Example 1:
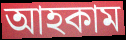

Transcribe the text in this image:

আহকাম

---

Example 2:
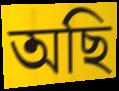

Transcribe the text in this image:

অছি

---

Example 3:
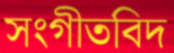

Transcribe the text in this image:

সংগীতবিদ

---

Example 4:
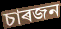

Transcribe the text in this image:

চাৰজন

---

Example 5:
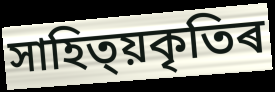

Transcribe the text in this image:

সাহিত্য়কৃতিৰ